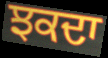
ਝਕਦਾ